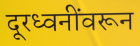
दूरध्वनींवरून